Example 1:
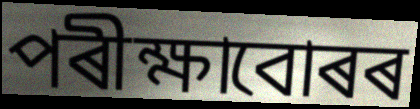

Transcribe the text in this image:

পৰীক্ষাবোৰৰ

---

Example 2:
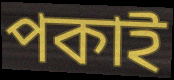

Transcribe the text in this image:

পকাই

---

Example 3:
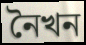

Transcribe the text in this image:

নৈখন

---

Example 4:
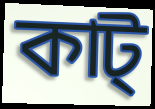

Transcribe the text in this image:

কাট্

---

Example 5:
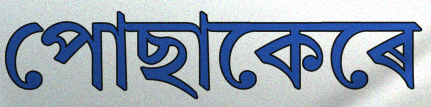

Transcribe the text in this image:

পোছাকেৰে